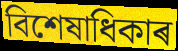
বিশেষাধিকাৰ